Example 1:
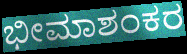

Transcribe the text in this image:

ಭೀಮಾಶಂಕರ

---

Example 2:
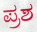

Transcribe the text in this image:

ಪ್ರಶ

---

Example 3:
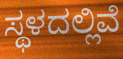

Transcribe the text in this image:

ಸ್ಥಳದಲ್ಲಿವೆ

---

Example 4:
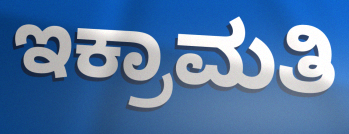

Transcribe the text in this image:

ಇಕ್ರಾಮತಿ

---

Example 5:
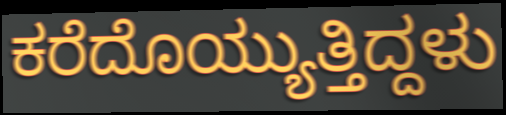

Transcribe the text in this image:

ಕರೆದೊಯ್ಯುತ್ತಿದ್ದಳು